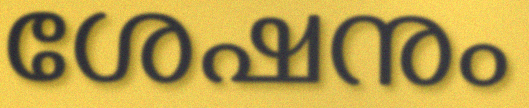
ശേഷനും